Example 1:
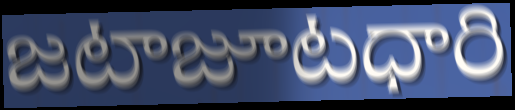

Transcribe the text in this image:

జటాజూటధారి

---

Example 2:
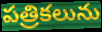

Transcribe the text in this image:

పత్రికలును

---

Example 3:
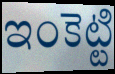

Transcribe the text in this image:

ఇంకెట్టి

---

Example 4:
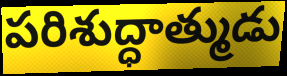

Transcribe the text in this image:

పరిశుద్ధాత్ముడు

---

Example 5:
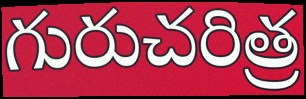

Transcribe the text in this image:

గురుచరిత్ర